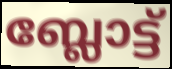
ബ്ലോട്ട്